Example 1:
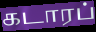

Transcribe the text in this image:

கடாரப்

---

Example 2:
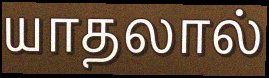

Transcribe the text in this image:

யாதலால்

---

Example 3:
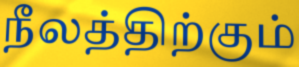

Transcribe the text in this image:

நீலத்திற்கும்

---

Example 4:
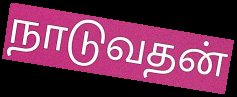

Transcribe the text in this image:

நாடுவதன்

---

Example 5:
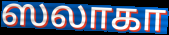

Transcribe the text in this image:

ஸலாகா